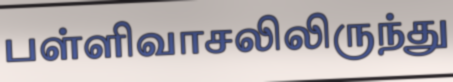
பள்ளிவாசலிலிருந்து